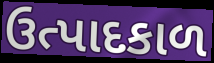
ઉત્પાદકાળ